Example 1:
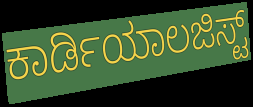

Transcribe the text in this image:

ಕಾರ್ಡಿಯಾಲಜಿಸ್ಟ್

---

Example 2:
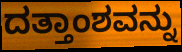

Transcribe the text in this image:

ದತ್ತಾಂಶವನ್ನು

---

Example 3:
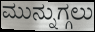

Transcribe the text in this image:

ಮುನ್ನುಗ್ಗಲು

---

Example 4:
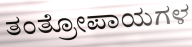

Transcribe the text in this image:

ತಂತ್ರೋಪಾಯಗಳ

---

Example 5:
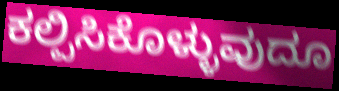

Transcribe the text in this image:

ಕಲ್ಪಿಸಿಕೊಳ್ಳುವುದೂ